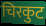
चिरकुट